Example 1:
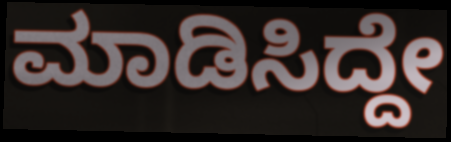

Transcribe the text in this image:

ಮಾಡಿಸಿದ್ದೇ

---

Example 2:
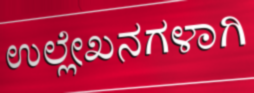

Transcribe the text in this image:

ಉಲ್ಲೇಖನಗಳಾಗಿ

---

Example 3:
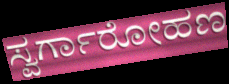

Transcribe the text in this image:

ಸ್ವರ್ಗಾರೋಹಣ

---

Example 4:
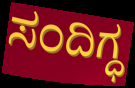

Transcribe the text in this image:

ಸಂದಿಗ್ಧ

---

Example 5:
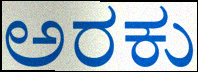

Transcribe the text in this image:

ಅರಕು